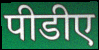
पीडीए